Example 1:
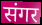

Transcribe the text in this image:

संगर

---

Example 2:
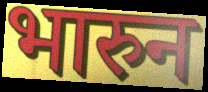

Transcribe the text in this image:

भारुन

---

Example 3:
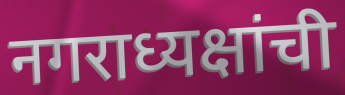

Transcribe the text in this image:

नगराध्यक्षांची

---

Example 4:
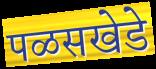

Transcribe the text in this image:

पळसखेडे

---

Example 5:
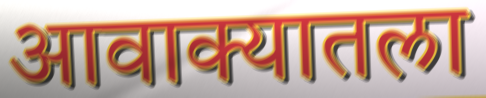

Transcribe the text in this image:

आवाक्यातला